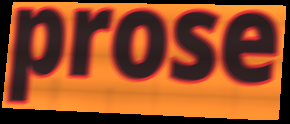
prose